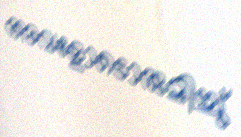
അവളോടൊരുമിച്ചു്